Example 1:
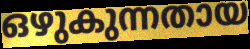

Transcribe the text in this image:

ഒഴുകുന്നതായ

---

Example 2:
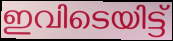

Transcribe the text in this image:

ഇവിടെയിട്ട്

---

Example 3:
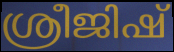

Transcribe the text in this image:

ശ്രീജിഷ്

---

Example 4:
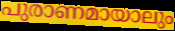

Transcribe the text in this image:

പുരാണമായാലും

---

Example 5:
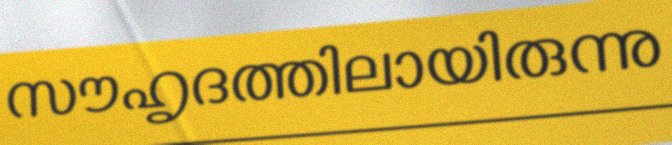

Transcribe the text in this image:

സൗഹൃദത്തിലായിരുന്നു